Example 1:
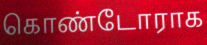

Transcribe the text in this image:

கொண்டோராக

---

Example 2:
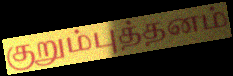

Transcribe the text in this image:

குறும்புத்தனம்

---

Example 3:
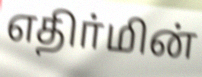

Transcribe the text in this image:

எதிர்மின்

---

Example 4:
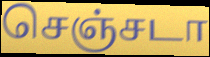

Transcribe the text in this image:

செஞ்சடா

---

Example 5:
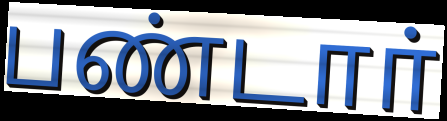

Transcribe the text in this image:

பண்டார்